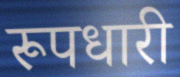
रूपधारी